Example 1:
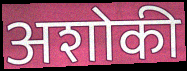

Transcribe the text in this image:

अशोकी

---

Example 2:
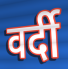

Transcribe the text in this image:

वर्दी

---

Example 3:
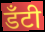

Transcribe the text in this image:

डँटी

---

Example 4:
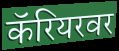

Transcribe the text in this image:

कॅरियरवर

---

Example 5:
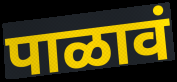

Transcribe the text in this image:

पाळावं